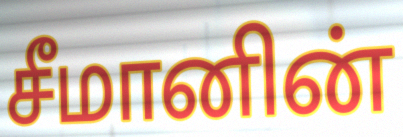
சீமானின்